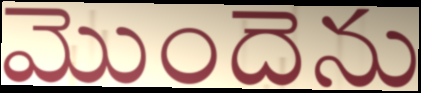
మొందెను